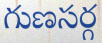
గుణసర్గ